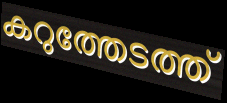
കറുത്തേടത്ത്